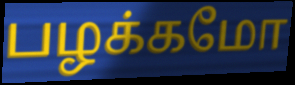
பழக்கமோ